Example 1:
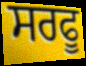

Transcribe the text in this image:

ਸਰਫੂ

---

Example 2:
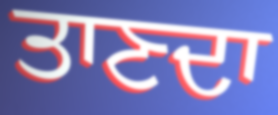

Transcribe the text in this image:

ਤਾਣਦਾ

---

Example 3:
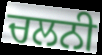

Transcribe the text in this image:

ਚਲਨੀ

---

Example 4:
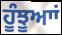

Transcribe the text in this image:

ਹੂੰਝੂਆਾਂ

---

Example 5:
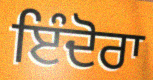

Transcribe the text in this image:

ਇੰਦੋਰਾ